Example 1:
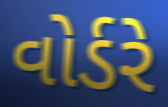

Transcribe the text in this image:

વોર્ડરે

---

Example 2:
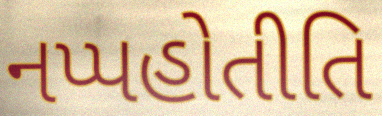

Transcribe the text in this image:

નપ્પહોતીતિ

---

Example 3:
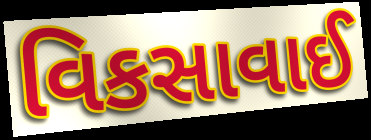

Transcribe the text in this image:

વિકસાવાઈ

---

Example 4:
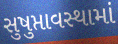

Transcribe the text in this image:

સુષુપ્તાવસ્થામાં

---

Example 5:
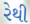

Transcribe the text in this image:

રેથી